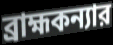
ব্রাহ্মকন্যার